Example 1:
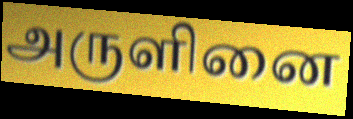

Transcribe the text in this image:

அருளினை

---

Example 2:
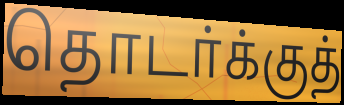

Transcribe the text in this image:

தொடர்க்குத்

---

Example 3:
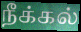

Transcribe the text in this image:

நீக்கல்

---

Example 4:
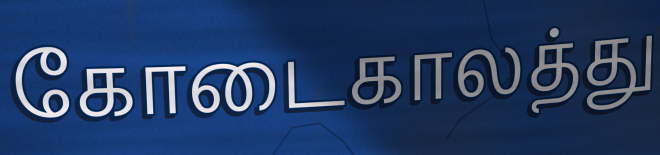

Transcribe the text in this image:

கோடைகாலத்து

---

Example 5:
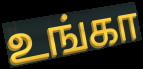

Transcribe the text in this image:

உங்கா